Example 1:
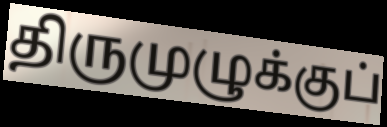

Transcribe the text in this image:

திருமுழுக்குப்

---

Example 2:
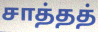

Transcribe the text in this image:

சாத்தத்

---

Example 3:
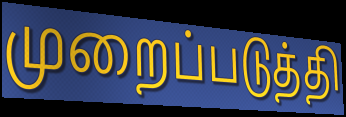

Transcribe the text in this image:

முறைப்படுத்தி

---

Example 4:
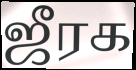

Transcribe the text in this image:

ஜீரக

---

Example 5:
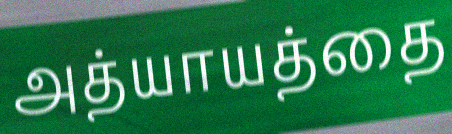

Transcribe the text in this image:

அத்யாயத்தை